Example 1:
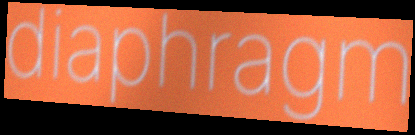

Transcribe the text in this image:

diaphragm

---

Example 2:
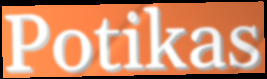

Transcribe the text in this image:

Potikas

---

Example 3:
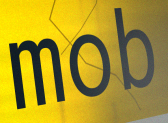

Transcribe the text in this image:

mob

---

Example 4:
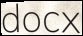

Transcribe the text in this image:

docx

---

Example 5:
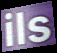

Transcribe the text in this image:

ils